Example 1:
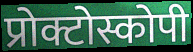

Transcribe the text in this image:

प्रोक्टोस्कोपी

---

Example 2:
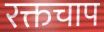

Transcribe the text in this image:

रक्तचाप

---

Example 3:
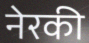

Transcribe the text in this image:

नेरकी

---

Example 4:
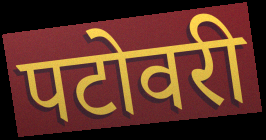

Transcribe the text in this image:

पटोवरी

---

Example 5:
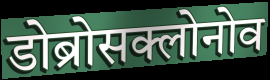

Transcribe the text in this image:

डोब्रोसक्लोनोव